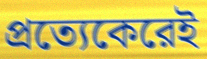
প্রত্যেকেরেই